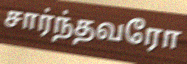
சார்ந்தவரோ